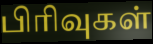
பிரிவுகள்